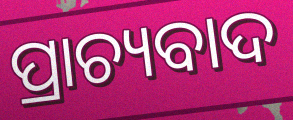
ପ୍ରାଚ୍ୟବାଦ